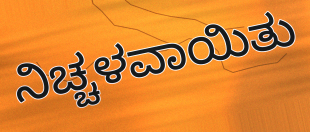
ನಿಚ್ಚಳವಾಯಿತು